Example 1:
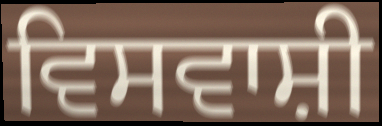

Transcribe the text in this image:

ਵਿਸਵਾਸ਼ੀ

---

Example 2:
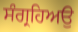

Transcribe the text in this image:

ਸੰਗ੍ਰਹਿਅਉ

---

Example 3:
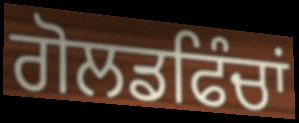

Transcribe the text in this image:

ਗੋਲਡਫਿੰਚਾਂ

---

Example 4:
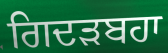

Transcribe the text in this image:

ਗਿਦੜਬਹਾ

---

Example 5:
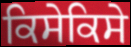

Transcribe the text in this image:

ਕਿਸੇਕਿਸੇ